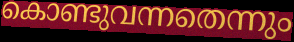
കൊണ്ടുവന്നതെന്നും